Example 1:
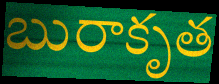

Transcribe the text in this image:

బురాకృత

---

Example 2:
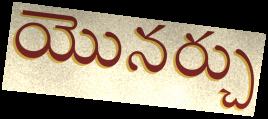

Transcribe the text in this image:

యొనర్చు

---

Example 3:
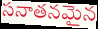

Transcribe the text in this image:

సనాతనమైన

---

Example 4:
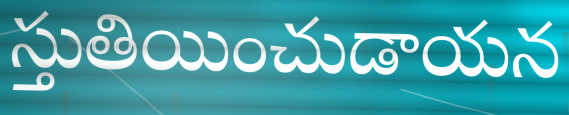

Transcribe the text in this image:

స్తుతియించుడాయన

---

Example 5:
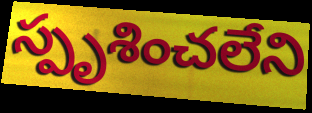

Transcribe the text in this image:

స్పృశించలేని